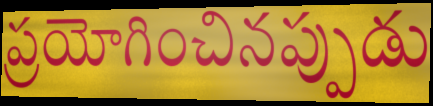
ప్రయోగించినప్పుడు